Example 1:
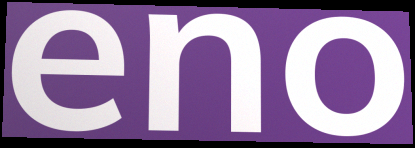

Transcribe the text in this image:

eno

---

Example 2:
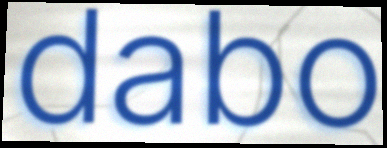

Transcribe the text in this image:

dabo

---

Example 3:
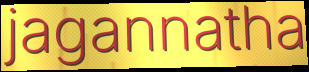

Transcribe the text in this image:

jagannatha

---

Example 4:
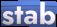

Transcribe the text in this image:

stab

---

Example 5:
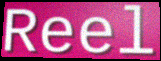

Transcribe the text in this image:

Reel